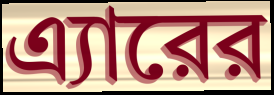
এ্যারের